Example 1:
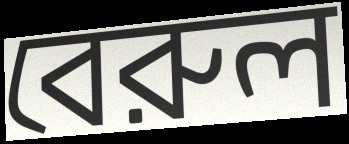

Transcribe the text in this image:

বেরুল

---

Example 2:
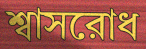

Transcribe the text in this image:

শ্বাসরোধ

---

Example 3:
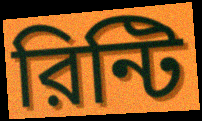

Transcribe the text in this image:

রিন্টি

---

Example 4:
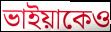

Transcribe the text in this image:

ভাইয়াকেও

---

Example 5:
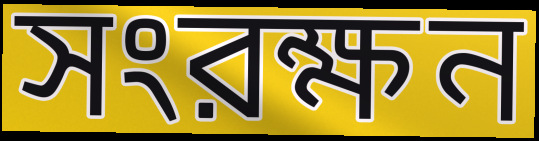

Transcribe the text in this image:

সংরক্ষন